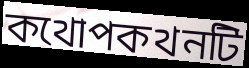
কথোপকথনটি